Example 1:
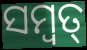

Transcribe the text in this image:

ସମ୍ବତ୍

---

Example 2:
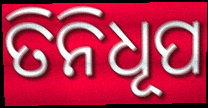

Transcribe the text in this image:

ତିନିଧୂପ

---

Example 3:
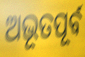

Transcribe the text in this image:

ଅଭୂତପୂର୍ବ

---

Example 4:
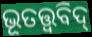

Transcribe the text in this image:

ଭୂତତ୍ତ୍ବବିଦ୍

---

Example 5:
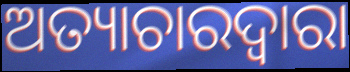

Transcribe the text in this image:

ଅତ୍ୟାଚାରଦ୍ୱାରା